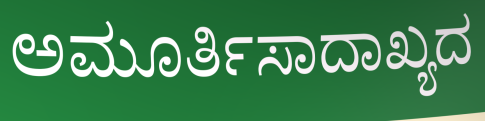
ಅಮೂರ್ತಿಸಾದಾಖ್ಯದ